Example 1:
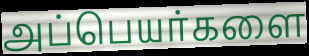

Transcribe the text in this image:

அப்பெயர்களை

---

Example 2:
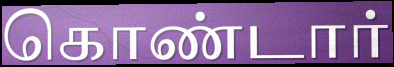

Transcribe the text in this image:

கொண்டார்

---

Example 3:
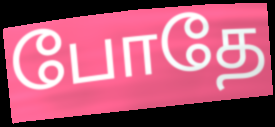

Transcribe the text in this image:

போதே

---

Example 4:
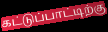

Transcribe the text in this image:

கட்டுப்பாட்டிற்கு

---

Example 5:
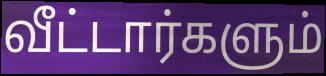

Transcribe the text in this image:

வீட்டார்களும்